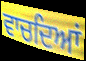
ਵਾਚਦਿਆਂ